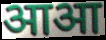
आआ